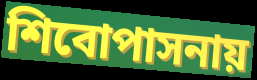
শিবোপাসনায়